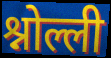
श्नोल्ली